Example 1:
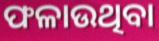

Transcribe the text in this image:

ଫଳାଉଥିବା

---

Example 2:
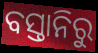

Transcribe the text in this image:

ବସ୍ତାନିରୁ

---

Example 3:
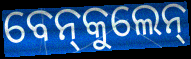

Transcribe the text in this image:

ବେନ୍‍କୁଲେନ୍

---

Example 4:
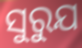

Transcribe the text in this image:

ସୁରୁଯ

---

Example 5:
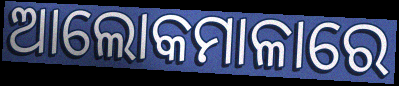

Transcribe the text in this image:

ଆଲୋକମାଳାରେ